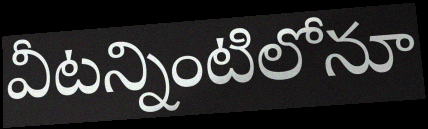
వీటన్నింటిలోనూ